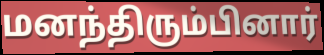
மனந்திரும்பினார்